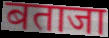
बताजा